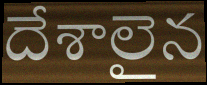
దేశాలైన